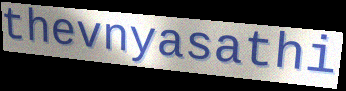
thevnyasathi